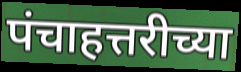
पंचाहत्तरीच्या